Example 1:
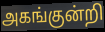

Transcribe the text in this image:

அகங்குன்றி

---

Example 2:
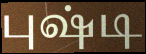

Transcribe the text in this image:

புஷ்டி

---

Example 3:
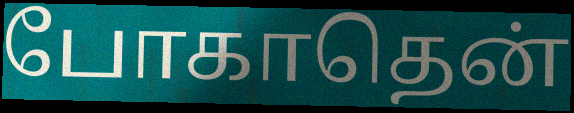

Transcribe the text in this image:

போகாதென்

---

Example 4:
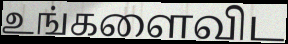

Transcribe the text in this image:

உங்களைவிட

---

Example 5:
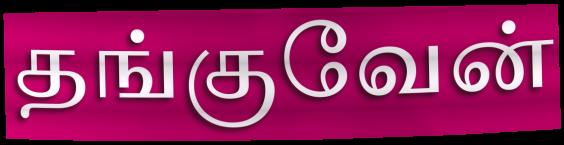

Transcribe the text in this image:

தங்குவேன்